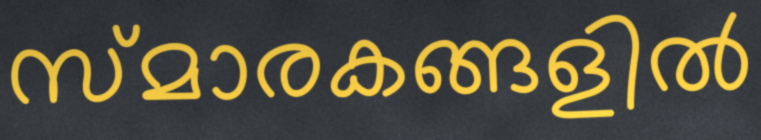
സ്മാരകങ്ങളിൽ